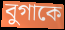
বুগাকে